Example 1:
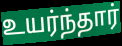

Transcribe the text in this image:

உயர்ந்தார்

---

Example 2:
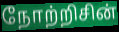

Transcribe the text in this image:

நோற்றிசின்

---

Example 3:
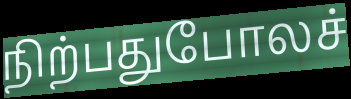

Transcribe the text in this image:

நிற்பதுபோலச்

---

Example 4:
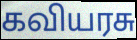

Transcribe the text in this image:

கவியரசு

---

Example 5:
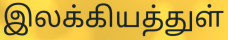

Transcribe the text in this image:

இலக்கியத்துள்